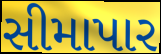
સીમાપાર